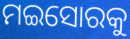
ମଇସୋରକୁ